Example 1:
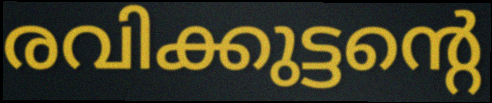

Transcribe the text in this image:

രവിക്കുട്ടന്റെ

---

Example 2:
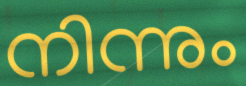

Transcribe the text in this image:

നിന്നും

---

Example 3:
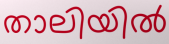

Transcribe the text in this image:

താലിയിൽ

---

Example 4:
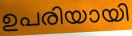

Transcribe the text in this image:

ഉപരിയായി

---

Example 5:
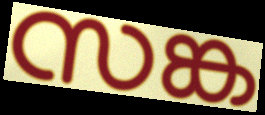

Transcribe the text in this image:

സങ്ക